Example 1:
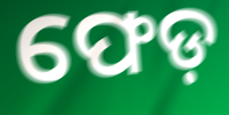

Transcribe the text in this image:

ଫେଡ଼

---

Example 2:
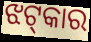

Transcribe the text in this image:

ଝଟ୍‍କାର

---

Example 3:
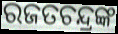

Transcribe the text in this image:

ରଜତଚନ୍ଦ୍ରଙ୍କ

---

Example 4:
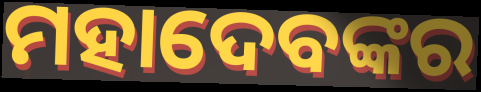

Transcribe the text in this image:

ମହାଦେବଙ୍କର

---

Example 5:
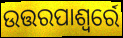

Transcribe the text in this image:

ଉତ୍ତରପାଶ୍ୱର୍ରେ